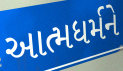
આત્મધર્મને